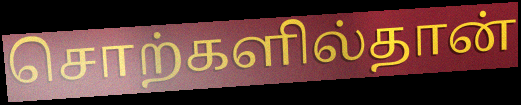
சொற்களில்தான்